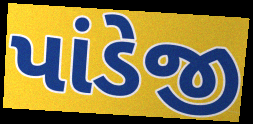
પાંડેજી